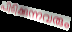
പിടിക്കുന്നവരും